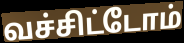
வச்சிட்டோம்